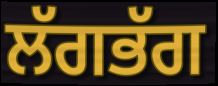
ਲੱਗਭੱਗ